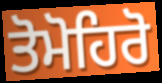
ਤੋਮੋਹਿਰੋ